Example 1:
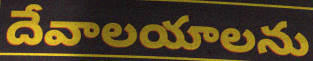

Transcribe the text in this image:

దేవాలయాలను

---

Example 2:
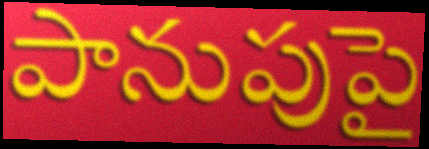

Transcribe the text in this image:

పానుపుపై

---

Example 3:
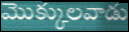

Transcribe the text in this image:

మొక్కులవాడు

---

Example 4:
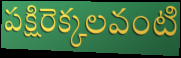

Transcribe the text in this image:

పక్షిరెక్కలవంటి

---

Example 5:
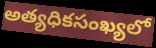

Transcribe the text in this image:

అత్యధికసంఖ్యలో